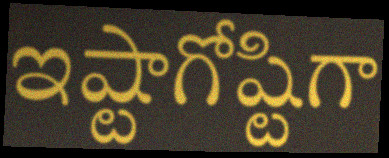
ఇష్టాగోష్టిగా